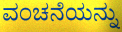
ವಂಚನೆಯನ್ನು